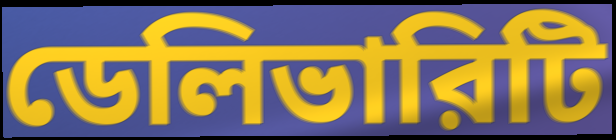
ডেলিভারিটি